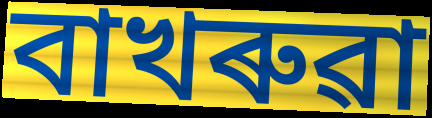
বাখৰুৱা